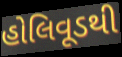
હોલિવૂડથી